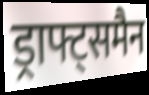
ड्राफ्ट्समैन